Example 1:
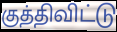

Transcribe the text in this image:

குத்திவிட்டு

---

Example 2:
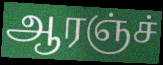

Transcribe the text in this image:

ஆரஞ்ச்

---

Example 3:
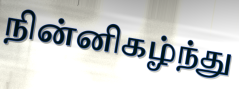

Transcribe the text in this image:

நின்னிகழ்ந்து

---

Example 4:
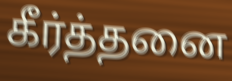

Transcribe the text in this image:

கீர்த்தனை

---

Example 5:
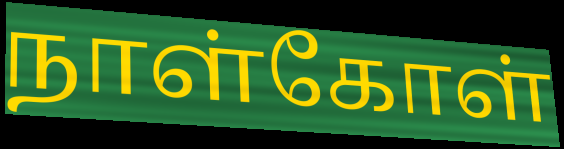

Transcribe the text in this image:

நாள்கோள்